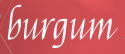
burgum